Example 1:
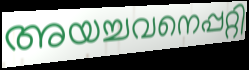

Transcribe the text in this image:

അയച്ചവനെപ്പറ്റി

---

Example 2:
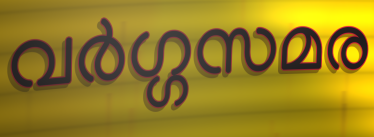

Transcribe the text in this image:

വർഗ്ഗസമര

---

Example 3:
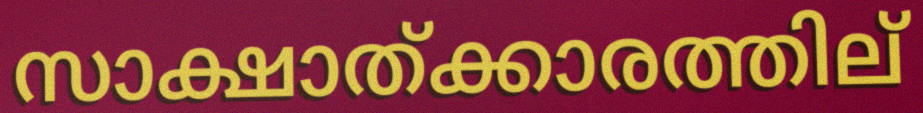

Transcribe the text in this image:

സാക്ഷാത്ക്കാരത്തില്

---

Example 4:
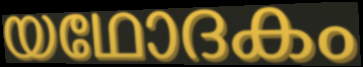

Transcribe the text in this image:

യഥോദകം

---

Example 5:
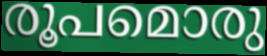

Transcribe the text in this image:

രൂപമൊരു